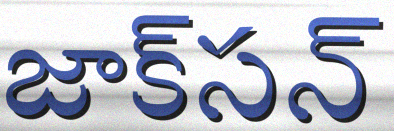
జాక్‌సన్